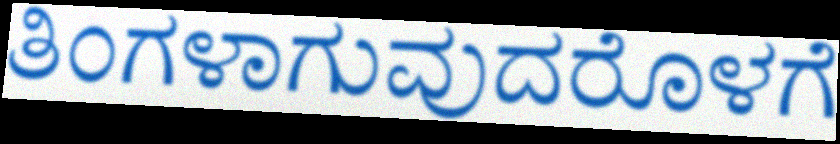
ತಿಂಗಳಾಗುವುದರೊಳಗೆ